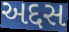
અદ્દસ